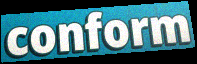
conform